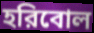
হরিবোল